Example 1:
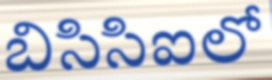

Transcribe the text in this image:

బిసిసిఐలో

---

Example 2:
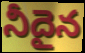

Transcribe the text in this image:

నీదైన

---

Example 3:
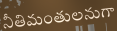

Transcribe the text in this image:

నీతిమంతులనుగా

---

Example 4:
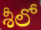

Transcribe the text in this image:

శీలో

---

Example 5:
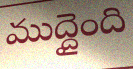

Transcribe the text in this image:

ముద్దైంది